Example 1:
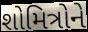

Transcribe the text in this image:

શોમિત્રોને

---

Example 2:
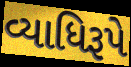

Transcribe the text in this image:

વ્યાધિરૂપે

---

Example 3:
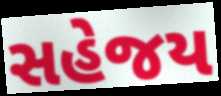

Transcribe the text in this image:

સહેજય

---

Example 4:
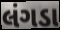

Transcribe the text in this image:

લંગડા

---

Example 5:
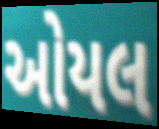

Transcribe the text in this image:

ઓયલ